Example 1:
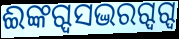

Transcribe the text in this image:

ଈଙ୍କଗ୍ଦସଦ୍ଭରଗ୍ଦଗ୍ଦ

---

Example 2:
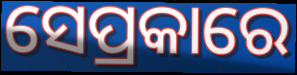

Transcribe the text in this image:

ସେପ୍ରକାରେ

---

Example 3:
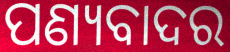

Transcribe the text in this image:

ପଣ୍ୟବାଦର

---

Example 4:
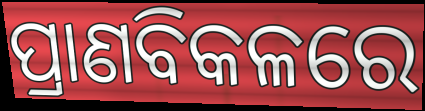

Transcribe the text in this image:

ପ୍ରାଣବିକଳରେ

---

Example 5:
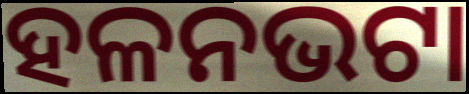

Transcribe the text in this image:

ହଳନଭଟା